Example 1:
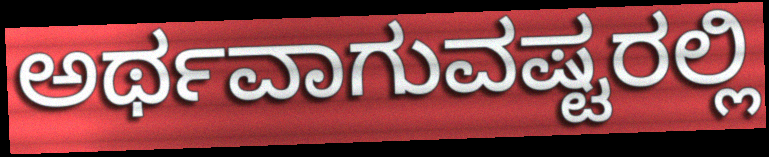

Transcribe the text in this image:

ಅರ್ಥವಾಗುವಷ್ಟರಲ್ಲಿ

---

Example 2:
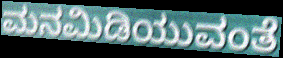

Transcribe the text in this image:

ಮನಮಿಡಿಯುವಂತೆ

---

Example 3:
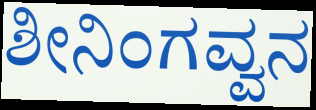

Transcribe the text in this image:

ಶೀನಿಂಗವ್ವನ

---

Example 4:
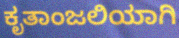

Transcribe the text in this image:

ಕೃತಾಂಜಲಿಯಾಗಿ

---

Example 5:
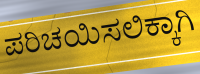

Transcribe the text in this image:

ಪರಿಚಯಿಸಲಿಕ್ಕಾಗಿ